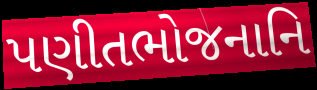
પણીતભોજનાનિ